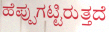
ಹೆಪ್ಪುಗಟ್ಟಿರುತ್ತದೆ